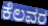
ಕೆಲವರ